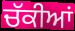
ਚੱਕੀਆਂ